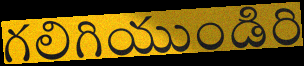
గలిగియుండిరి